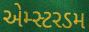
એમ્સ્ટરડમ